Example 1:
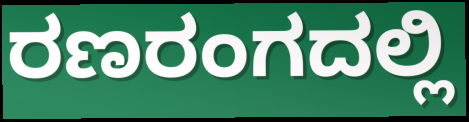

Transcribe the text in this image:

ರಣರಂಗದಲ್ಲಿ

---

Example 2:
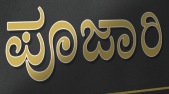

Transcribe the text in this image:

ಪೂಜಾರಿ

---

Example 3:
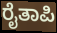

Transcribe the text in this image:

ರೈತಾಪಿ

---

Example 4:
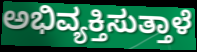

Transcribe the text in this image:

ಅಭಿವ್ಯಕ್ತಿಸುತ್ತಾಳೆ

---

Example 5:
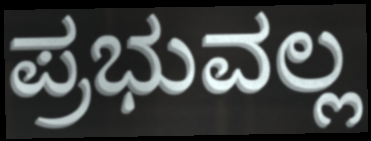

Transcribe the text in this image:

ಪ್ರಭುವಲ್ಲ